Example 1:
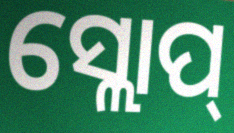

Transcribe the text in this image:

ସ୍ଲୋପ୍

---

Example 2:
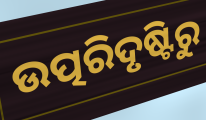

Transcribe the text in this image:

ଉତ୍ପରିଦୃଷ୍ଟିରୁ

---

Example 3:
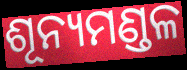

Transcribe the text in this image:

ଶୂନ୍ୟମଣ୍ଡଳ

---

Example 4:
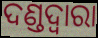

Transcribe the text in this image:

ଦଣ୍ଡଦ୍ବାରା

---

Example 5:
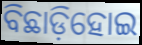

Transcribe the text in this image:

ବିଛାଡ଼ିହୋଇ